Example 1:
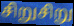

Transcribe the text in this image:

சிறுசிறு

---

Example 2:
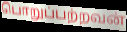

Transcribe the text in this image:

பொறுப்பற்றவன்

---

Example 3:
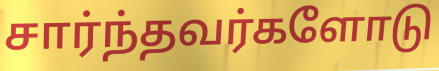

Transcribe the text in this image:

சார்ந்தவர்களோடு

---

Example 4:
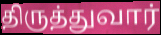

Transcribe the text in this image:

திருத்துவார்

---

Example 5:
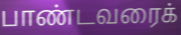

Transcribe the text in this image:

பாண்டவரைக்